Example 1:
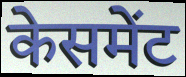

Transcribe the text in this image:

केसमेंट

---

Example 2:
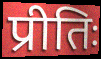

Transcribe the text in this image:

प्रीतिः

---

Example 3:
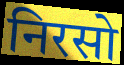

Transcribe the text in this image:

निरसो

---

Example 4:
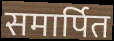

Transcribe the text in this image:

समार्पित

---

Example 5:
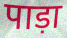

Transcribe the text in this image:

पाड़ा